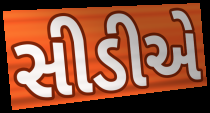
સીડીએ